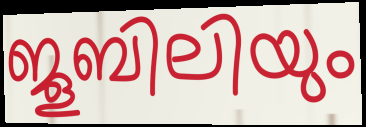
ജൂബിലിയും